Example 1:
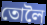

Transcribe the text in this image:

তোলৈ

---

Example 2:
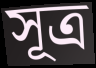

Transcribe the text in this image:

সূত্ৰ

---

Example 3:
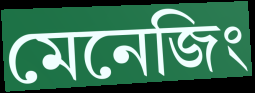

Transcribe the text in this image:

মেনেজিং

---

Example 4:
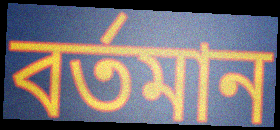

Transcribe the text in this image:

বৰ্তমান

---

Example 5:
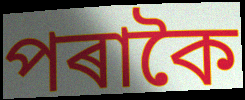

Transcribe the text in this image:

পৰাকৈ